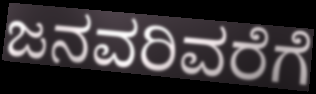
ಜನವರಿವರೆಗೆ